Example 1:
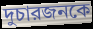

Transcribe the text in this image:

দুচারজনকে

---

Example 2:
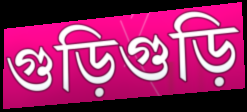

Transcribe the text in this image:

গুড়িগুড়ি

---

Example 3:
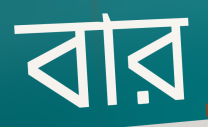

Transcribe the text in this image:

বার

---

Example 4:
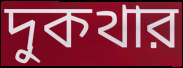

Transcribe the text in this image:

দুকথার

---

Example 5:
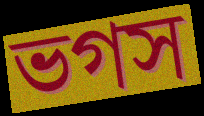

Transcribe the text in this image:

ভগস